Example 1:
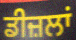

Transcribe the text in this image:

ਡੀਜ਼ਲਾਂ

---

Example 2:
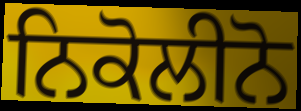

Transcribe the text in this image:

ਨਿਕੋਲੀਨੋ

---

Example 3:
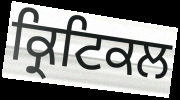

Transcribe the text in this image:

ਕ੍ਰਿਟਿਕਲ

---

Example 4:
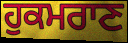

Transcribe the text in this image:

ਹੁਕਮਰਾਣ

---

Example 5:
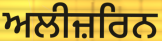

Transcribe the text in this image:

ਅਲੀਜ਼ਰਿਨ